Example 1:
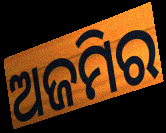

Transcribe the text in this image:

ଅଜମିର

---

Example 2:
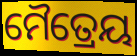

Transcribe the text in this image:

ମୈତ୍ରେୟ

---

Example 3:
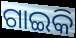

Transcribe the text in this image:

ଗାଇକି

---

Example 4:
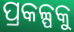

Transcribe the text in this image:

ପ୍ରକଳ୍ପକୁ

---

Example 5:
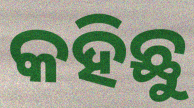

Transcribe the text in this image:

କହିଛୁ